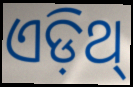
ଏଡ଼ିଥ୍